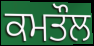
ਕਮਤੌਲ